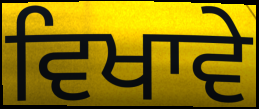
ਵਿਖਾਵੇ